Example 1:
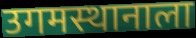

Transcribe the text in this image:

उगमस्थानाला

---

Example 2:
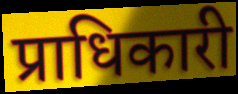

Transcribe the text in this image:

प्राधिकारी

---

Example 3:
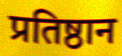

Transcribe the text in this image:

प्रतिष्ठान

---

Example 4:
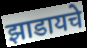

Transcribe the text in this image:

झाडायचे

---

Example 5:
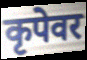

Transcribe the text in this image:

कृपेवर